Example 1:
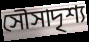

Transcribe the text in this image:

সৌসাদৃশ্য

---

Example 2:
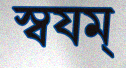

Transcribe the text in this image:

স্বযম্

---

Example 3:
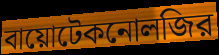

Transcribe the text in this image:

বায়োটেকনোলজির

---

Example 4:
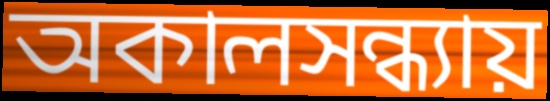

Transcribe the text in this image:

অকালসন্ধ্যায়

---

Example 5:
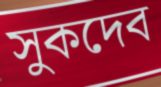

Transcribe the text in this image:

সুকদেব